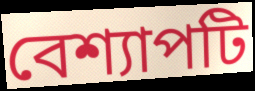
বেশ্যাপটি